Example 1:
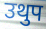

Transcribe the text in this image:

उथुप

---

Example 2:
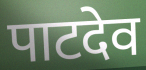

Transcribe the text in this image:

पाटदेव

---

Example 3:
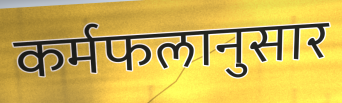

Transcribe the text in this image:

कर्मफलानुसार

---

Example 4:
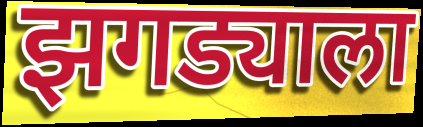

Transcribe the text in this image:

झगड्याला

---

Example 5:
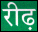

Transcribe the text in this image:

रीढ़